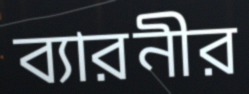
ব্যারনীর